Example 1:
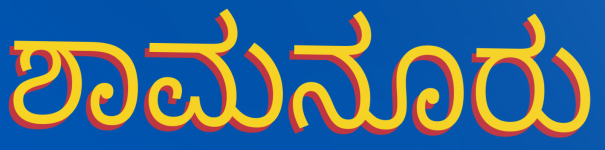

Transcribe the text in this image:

ಶಾಮನೂರು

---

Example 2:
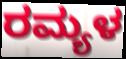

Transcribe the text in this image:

ರಮ್ಯಳ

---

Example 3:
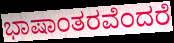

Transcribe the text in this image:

ಭಾಷಾಂತರವೆಂದರೆ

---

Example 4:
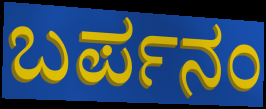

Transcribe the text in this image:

ಬರ್ಪನಂ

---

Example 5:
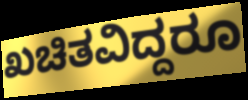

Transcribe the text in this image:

ಖಚಿತವಿದ್ದರೂ